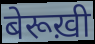
बेरूख़ी